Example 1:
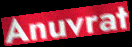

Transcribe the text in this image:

Anuvrat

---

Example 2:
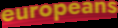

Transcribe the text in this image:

europeans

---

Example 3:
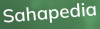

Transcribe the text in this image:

Sahapedia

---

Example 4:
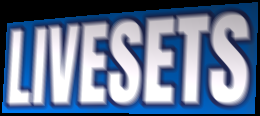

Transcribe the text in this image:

LIVESETS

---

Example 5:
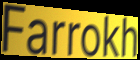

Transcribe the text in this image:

Farrokh